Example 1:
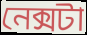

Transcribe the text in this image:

নেক্সটা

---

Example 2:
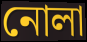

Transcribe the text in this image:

নোলা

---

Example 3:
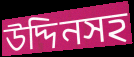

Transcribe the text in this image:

উদ্দিনসহ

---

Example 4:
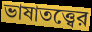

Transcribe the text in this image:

ভাষাতত্ত্বের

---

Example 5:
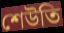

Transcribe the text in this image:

শেউতি